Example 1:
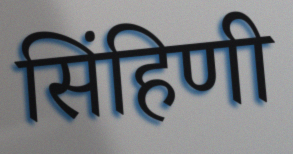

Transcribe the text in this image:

सिंहिणी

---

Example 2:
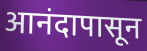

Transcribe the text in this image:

आनंदापासून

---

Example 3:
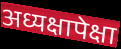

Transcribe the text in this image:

अध्यक्षापेक्षा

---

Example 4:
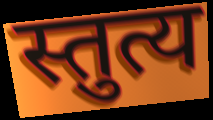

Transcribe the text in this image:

स्तुत्य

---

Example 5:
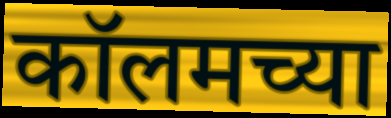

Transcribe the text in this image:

कॉलमच्या